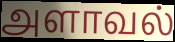
அளாவல்